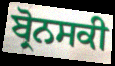
ਬ੍ਰੋਨਸਕੀ